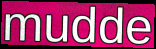
mudde